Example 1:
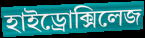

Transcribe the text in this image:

হাইড্রোক্সিলেজ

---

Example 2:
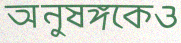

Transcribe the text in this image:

অনুষঙ্গকেও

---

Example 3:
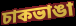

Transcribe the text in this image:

চাকভাঙা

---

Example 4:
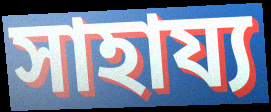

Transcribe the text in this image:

সাহায্য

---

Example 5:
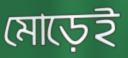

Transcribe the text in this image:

মোড়েই